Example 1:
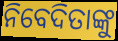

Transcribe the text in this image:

ନିବେଦିତାଙ୍କୁ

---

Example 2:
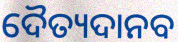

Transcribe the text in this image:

ଦୈତ୍ୟଦାନବ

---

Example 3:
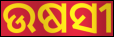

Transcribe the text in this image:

ଉଷସୀ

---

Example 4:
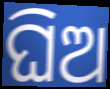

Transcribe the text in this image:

ଘିଅ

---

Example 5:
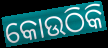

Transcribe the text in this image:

କୋଉଠିକି